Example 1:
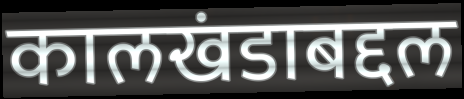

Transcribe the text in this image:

कालखंडाबद्दल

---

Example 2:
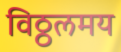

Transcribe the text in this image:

विठ्ठलमय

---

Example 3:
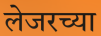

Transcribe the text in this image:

लेजरच्या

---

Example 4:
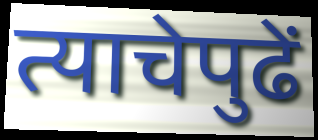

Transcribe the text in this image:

त्याचेपुढें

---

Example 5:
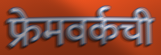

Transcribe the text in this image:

फ्रेमवर्कची